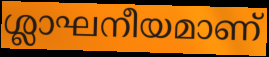
ശ്ലാഘനീയമാണ്